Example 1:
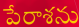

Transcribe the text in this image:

పేరాశను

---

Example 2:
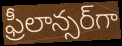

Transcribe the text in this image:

ఫ్రీలాన్సర్‌గా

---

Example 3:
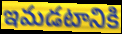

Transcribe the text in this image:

ఇమడటానికి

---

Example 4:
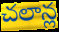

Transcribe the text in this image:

చలాన్ల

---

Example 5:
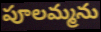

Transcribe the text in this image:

పూలమ్మను